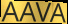
AAVA